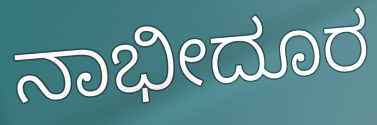
ನಾಭೀದೂರ